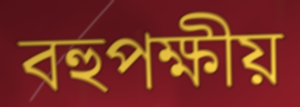
বহুপক্ষীয়